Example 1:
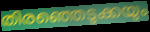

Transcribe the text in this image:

തിരഞ്ഞെടുക്കയും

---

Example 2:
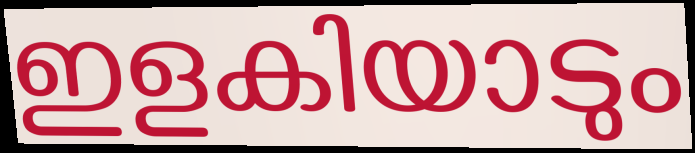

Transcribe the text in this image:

ഇളകിയാടും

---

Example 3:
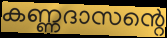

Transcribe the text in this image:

കണ്ണദാസന്റെ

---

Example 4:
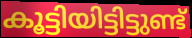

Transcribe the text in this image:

കൂട്ടിയിട്ടിട്ടുണ്ട്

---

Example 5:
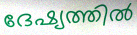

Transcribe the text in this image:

ദേഷ്യത്തിൽ